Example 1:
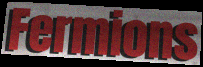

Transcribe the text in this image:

Fermions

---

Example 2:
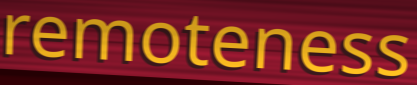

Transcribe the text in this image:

remoteness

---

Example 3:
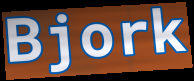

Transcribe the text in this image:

Bjork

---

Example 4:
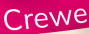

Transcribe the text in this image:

Crewe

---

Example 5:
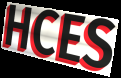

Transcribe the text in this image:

HCES